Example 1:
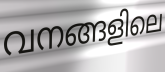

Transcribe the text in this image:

വനങ്ങളിലെ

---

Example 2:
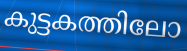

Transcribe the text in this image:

കുട്ടകത്തിലോ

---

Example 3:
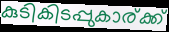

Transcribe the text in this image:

കുടികിടപ്പുകാര്ക്ക്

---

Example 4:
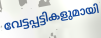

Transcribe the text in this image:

വേട്ടപ്പട്ടികളുമായി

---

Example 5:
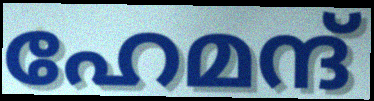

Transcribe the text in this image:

ഹേമന്ദ്